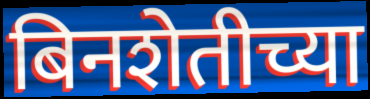
बिनशेतीच्या